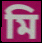
মি